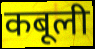
कबूली